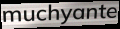
muchyante